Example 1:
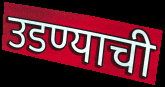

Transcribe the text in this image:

उडण्याची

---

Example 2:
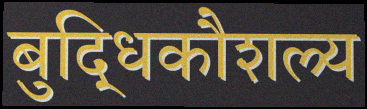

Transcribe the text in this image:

बुद्धिकौशल्य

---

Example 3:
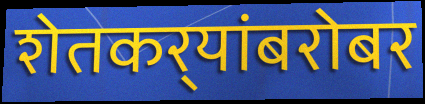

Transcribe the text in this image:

शेतकर्‍यांबरोबर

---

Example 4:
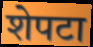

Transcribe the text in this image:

शेपटा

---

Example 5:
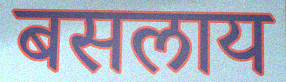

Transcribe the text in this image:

बसलाय